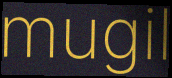
mugil